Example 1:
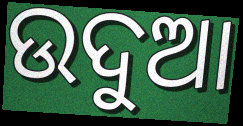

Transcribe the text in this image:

ଉଦୁଆ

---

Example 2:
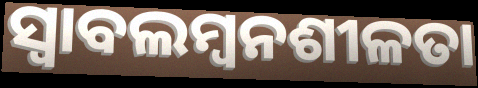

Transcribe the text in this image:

ସ୍ୱାବଲମ୍ବନଶୀଳତା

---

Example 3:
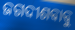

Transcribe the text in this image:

ଜଗଦୀଶବାବୁ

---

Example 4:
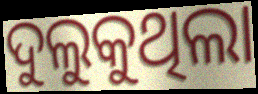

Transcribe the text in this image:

ଦୁଲୁକୁଥିଲା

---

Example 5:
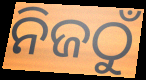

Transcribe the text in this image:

ନିଜଠୁଁ